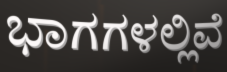
ಭಾಗಗಳಲ್ಲಿವೆ